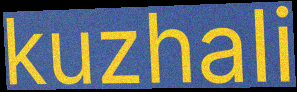
kuzhali